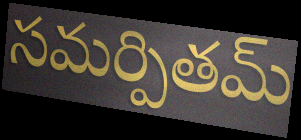
సమర్పితమ్